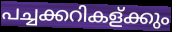
പച്ചക്കറികള്ക്കും